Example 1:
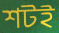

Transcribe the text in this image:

শটই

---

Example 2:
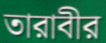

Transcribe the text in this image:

তারাবীর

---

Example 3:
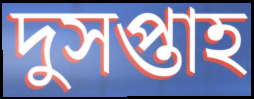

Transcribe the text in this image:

দুসপ্তাহ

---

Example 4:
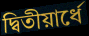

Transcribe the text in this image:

দ্বিতীয়ার্ধে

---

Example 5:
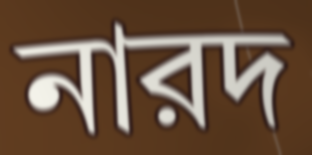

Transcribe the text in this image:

নারদ